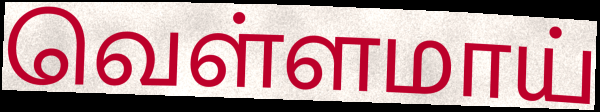
வெள்ளமாய்